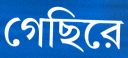
গেছিরে